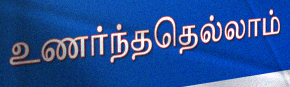
உணர்ந்ததெல்லாம்